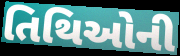
તિથિઓની